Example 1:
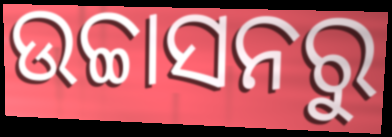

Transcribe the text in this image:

ଉଚ୍ଚାସନରୁ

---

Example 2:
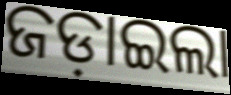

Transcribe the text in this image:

ଜଡ଼ାଇଲା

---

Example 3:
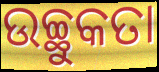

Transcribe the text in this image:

ଉଚ୍ଛୁକତା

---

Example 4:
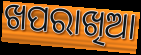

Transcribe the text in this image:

ଖପରାଖିଆ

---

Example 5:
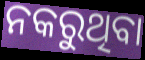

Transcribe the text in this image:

ନକରୁଥିବା